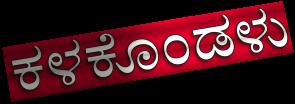
ಕಳಕೊಂಡಳು